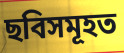
ছবিসমূহত